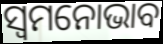
ସ୍ୱମନୋଭାବ